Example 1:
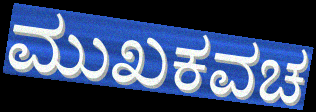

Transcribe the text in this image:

ಮುಖಕವಚ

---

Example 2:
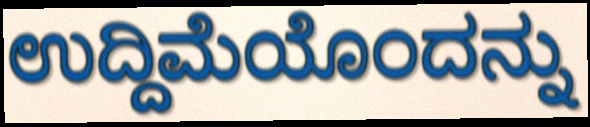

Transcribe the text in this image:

ಉದ್ದಿಮೆಯೊಂದನ್ನು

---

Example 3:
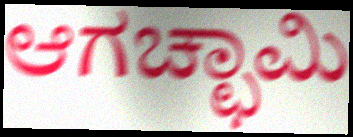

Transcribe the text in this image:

ಆಗಚ್ಛಾಮಿ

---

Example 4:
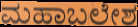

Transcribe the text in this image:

ಮಹಾಬಲೇಶ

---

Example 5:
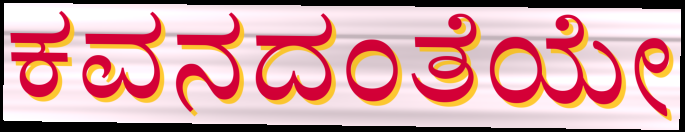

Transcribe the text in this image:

ಕವನದಂತೆಯೇ